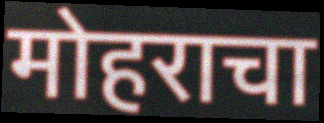
मोहराचा